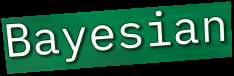
Bayesian